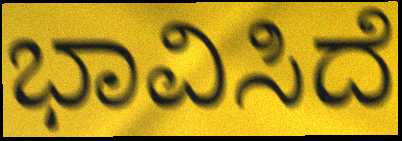
ಭಾವಿಸಿದೆ